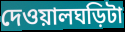
দেওয়ালঘড়িটা